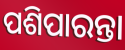
ପଶିପାରନ୍ତା